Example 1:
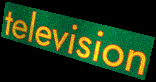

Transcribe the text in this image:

television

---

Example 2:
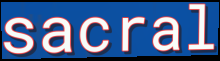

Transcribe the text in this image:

sacral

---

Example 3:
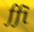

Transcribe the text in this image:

ffi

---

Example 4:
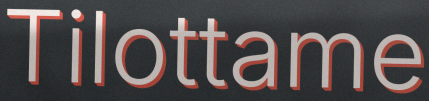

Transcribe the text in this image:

Tilottame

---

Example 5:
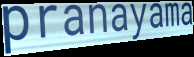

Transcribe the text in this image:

pranayama